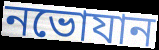
নভোযান